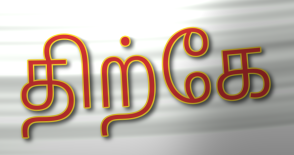
திற்கே